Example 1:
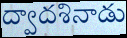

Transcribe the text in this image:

ద్వాదశినాడు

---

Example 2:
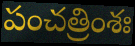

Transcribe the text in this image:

పంచత్రింశః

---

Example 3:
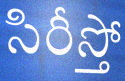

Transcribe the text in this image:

సిరీస్తో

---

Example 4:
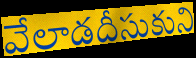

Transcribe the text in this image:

వేలాడదీసుకుని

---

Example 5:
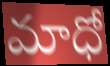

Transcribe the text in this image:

మాధో